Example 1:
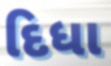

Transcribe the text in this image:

દિધા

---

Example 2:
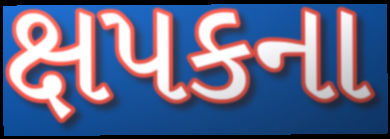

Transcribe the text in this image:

ક્ષપકના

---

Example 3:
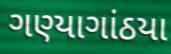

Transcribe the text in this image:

ગણ્યાગાંઠયા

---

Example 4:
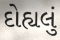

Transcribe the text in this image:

દોહ્યલું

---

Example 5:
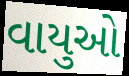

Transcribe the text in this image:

વાયુઓ